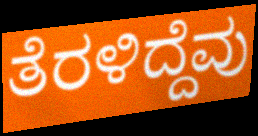
ತೆರಳಿದ್ದೆವು